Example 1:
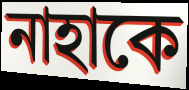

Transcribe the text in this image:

নাহাকে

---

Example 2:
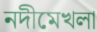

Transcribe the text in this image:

নদীমেখলা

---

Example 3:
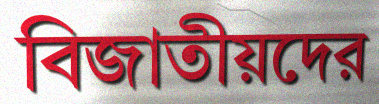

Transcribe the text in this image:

বিজাতীয়দের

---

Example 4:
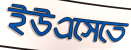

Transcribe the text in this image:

ইউএসেতে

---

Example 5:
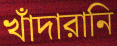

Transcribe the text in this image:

খাঁদারানি